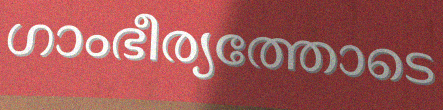
ഗാംഭീര്യത്തോടെ